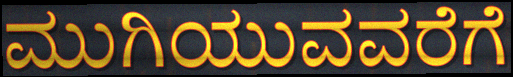
ಮುಗಿಯುವವರೆಗೆ